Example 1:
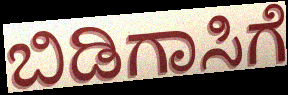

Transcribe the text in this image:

ಬಿಡಿಗಾಸಿಗೆ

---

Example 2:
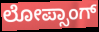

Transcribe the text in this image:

ಲೋಪ್ಸಾಂಗ್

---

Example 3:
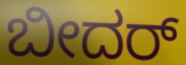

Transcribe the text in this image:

ಬೀದರ್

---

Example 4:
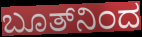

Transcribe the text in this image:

ಬೂತ್‌ನಿಂದ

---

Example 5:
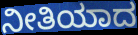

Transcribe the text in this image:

ನೀತಿಯಾದ